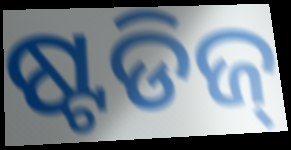
ଷ୍ଟଡିଜ୍